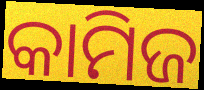
କାମିଜ